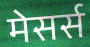
मेसर्स